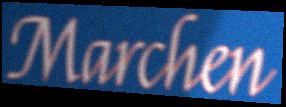
Marchen